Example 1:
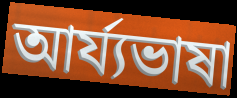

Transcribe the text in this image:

আর্য্যভাষা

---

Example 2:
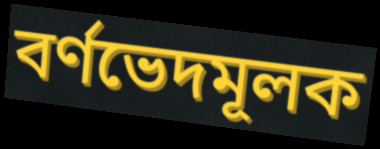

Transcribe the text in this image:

বর্ণভেদমূলক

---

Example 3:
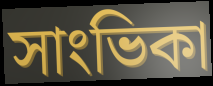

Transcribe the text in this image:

সাংভিকা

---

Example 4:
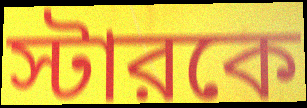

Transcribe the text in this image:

স্টারকে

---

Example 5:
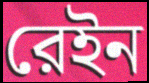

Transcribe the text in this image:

রেইন